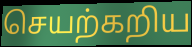
செயற்கறிய